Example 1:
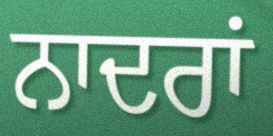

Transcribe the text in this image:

ਨਾਦਰਾਂ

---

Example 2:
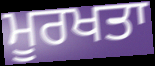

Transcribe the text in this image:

ਮੂਰਖਤਾ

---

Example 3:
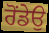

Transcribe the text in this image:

ਰੋਂਡੇਉ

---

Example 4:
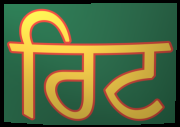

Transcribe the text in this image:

ਰਿਟ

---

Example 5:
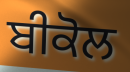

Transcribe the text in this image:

ਬੀਕੋਲ